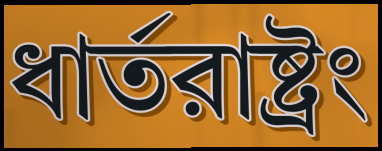
ধার্তরাষ্ট্রং